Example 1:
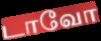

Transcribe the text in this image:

டாவோ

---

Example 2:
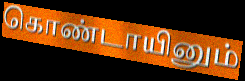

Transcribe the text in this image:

கொண்டாயினும்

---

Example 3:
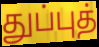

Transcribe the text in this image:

துப்புத்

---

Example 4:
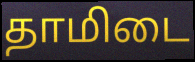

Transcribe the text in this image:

தாமிடை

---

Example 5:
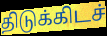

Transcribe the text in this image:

திடுக்கிடச்